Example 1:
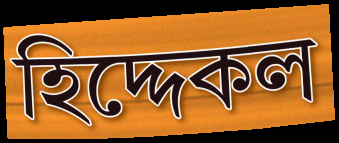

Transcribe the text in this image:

হিদ্দেকল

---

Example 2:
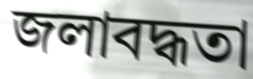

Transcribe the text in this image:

জলাবদ্ধতা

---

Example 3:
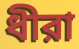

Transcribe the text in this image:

ধীরা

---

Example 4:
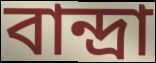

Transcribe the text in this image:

বান্দ্রা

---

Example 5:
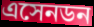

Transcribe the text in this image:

এসেনডন